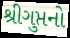
શ્રીગુપ્તનો